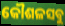
କୌଶଳସବୁ